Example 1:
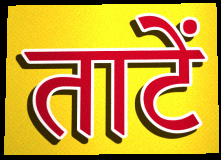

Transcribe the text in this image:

ताटें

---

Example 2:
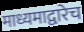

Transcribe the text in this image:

माध्यमाद्वारेच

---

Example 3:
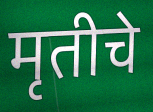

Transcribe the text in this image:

मृतीचे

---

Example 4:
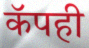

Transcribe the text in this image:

कॅपही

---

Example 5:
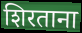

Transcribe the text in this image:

शिरताना